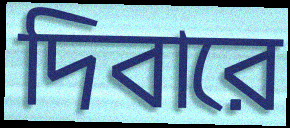
দিবারে